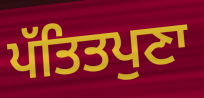
ਪੱਤਿਤਪੁਣਾ